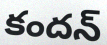
కందన్